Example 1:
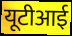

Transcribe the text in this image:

यूटीआई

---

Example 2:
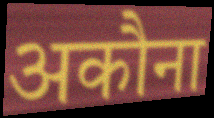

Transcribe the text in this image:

अकौना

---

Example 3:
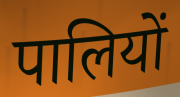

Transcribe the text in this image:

पालियों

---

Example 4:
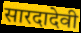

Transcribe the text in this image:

सारदादेवी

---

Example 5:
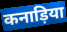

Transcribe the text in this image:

कनाड़िया